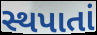
સ્થપાતાં